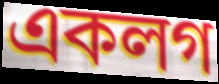
একলগ